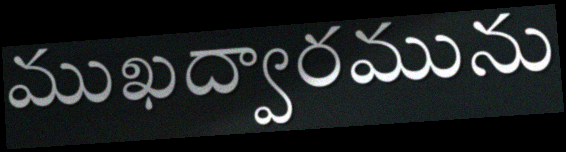
ముఖద్వారమును